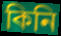
কিনি